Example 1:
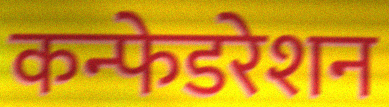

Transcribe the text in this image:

कन्‍फेडरेशन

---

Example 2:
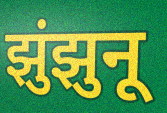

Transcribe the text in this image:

झुंझुनू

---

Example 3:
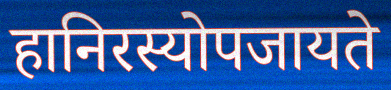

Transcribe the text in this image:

हानिरस्योपजायते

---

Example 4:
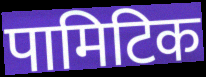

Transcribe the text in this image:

पामिटिक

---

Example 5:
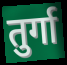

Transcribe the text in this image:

तुर्गा